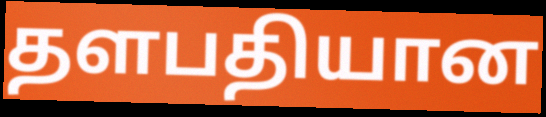
தளபதியான